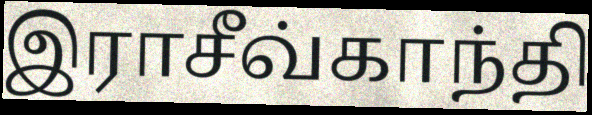
இராசீவ்காந்தி